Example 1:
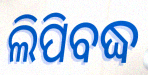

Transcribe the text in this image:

ଲିପିବଦ୍ଧ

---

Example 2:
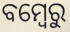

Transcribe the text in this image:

ବମ୍ବେରୁ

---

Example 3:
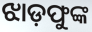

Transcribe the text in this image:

ଝାଡ଼ଫୁଙ୍କ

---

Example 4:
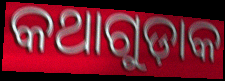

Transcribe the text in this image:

କଥାଗୁଡ଼ାକ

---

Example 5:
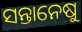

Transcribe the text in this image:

ସନ୍ତାନେଷୁ